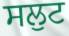
ਸਲੁਟ